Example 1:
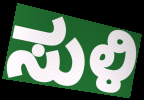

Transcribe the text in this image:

ಸುಳಿ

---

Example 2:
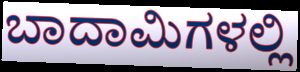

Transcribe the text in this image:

ಬಾದಾಮಿಗಳಲ್ಲಿ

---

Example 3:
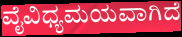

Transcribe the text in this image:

ವೈವಿಧ್ಯಮಯವಾಗಿದೆ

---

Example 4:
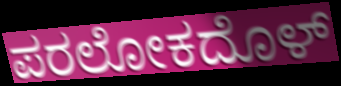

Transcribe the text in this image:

ಪರಲೋಕದೊಳ್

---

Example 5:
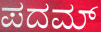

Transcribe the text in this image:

ಪದಮ್